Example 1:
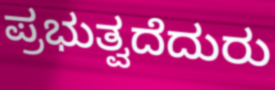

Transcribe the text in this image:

ಪ್ರಭುತ್ವದೆದುರು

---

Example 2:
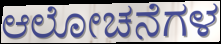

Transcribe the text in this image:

ಆಲೋಚನೆಗಳ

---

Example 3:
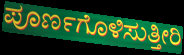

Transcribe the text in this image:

ಪೂರ್ಣಗೊಳಿಸುತ್ತೀರಿ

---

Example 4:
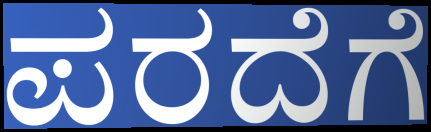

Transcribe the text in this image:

ಪರದೆಗೆ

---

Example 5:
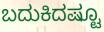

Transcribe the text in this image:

ಬದುಕಿದಷ್ಟೂ